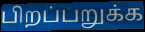
பிறப்பறுக்க